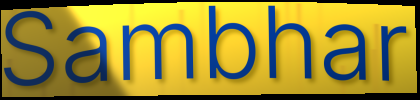
Sambhar